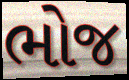
ભોજ